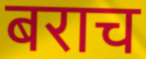
बराच